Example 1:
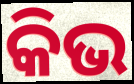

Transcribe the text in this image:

କିଭ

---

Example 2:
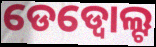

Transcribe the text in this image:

ଡେଡ୍ବୋଲ୍ଟ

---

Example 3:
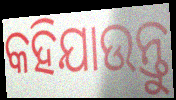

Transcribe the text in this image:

କହିଯାଉନ୍ତୁ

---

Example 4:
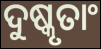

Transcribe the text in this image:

ଦୁଷ୍କୃତାଂ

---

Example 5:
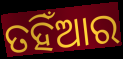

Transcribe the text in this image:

ତହିଁଆର